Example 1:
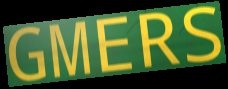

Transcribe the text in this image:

GMERS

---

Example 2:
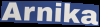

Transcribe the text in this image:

Arnika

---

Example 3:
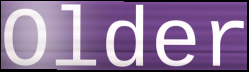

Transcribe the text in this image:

Older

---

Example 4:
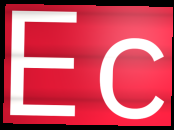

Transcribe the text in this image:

Ec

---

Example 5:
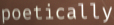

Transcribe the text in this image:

poetically